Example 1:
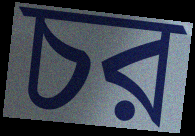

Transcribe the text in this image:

চর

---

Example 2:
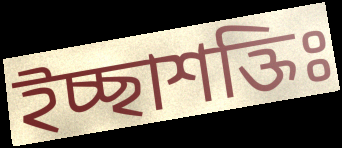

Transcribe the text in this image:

ইচ্ছাশক্তিঃ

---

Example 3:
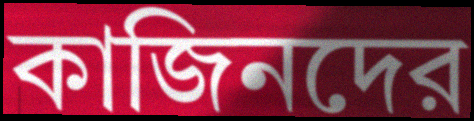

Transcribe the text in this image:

কাজিনদের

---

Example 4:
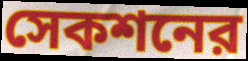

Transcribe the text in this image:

সেকশনের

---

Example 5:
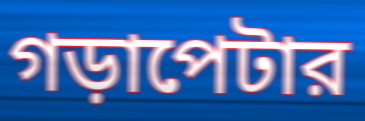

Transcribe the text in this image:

গড়াপেটার